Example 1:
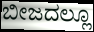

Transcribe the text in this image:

ಬೀಜದಲ್ಲೂ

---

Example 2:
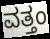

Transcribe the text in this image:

ವತ್ತಂ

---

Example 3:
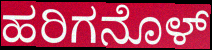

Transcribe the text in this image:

ಹರಿಗನೊಳ್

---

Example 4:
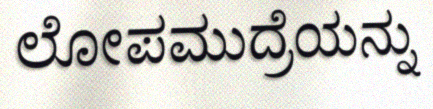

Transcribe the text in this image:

ಲೋಪಮುದ್ರೆಯನ್ನು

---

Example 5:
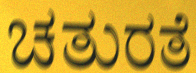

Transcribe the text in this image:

ಚತುರತೆ